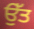
ਉੱਤ